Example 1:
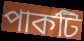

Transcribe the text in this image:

পার্কটি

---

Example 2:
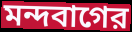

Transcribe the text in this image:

মন্দবাগের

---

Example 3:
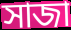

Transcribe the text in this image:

সাজা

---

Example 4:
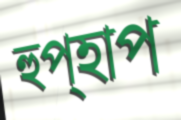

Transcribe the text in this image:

হুপ্হাপ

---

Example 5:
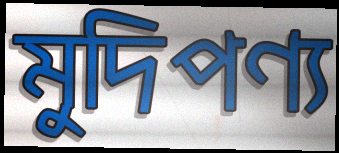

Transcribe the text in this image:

মুদিপণ্য